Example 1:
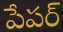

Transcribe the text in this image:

పేపర్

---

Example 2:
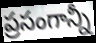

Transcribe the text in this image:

ప్రసంగాన్నీ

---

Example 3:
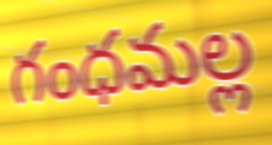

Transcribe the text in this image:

గంధమల్ల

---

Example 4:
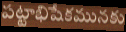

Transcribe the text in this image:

పట్టాభిషేకమునకు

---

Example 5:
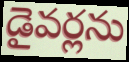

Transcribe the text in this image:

డైవర్లను